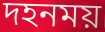
দহনময়